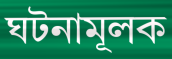
ঘটনামূলক